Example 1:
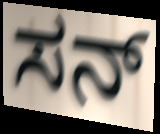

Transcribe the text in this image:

ಸನ್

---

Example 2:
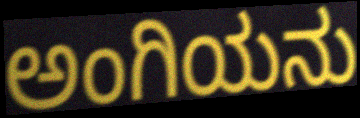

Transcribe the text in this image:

ಅಂಗಿಯನು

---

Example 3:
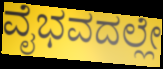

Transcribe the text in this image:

ವೈಭವದಲ್ಲೇ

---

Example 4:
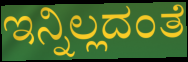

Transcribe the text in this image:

ಇನ್ನಿಲ್ಲದಂತೆ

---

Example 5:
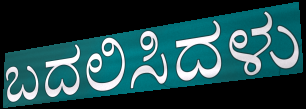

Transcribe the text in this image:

ಬದಲಿಸಿದಳು